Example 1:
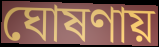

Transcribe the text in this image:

ঘোষণায়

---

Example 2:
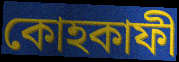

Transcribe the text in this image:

কোহকাফী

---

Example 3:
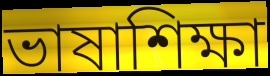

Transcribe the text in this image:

ভাষাশিক্ষা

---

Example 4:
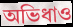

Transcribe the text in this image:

অভিধাও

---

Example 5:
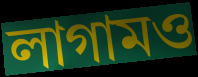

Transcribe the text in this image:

লাগামও